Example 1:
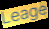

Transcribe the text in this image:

Leage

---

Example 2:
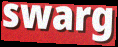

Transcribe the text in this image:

swarg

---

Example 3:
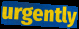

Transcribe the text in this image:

urgently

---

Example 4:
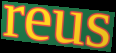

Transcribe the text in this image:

reus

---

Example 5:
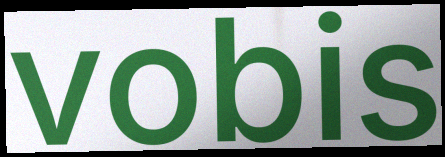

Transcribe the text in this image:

vobis